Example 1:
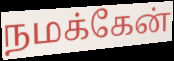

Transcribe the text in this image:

நமக்கேன்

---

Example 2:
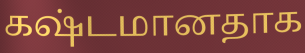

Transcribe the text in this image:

கஷ்டமானதாக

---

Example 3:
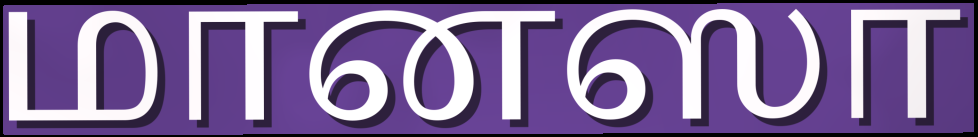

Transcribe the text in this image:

மானஸா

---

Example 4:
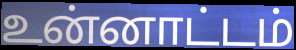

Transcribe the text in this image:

உன்னாட்டம்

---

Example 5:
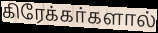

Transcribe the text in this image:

கிரேக்கர்களால்